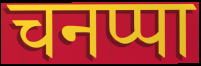
चनप्पा